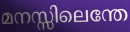
മനസ്സിലെന്തേ